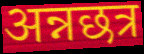
अन्नछत्र